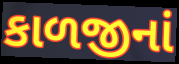
કાળજીનાં